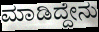
ಮಾಡಿದ್ದೇನು